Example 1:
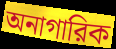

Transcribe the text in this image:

অনাগারিক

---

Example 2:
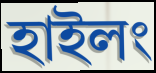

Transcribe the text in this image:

হাইলং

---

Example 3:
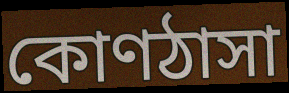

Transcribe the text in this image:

কোণঠাসা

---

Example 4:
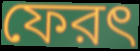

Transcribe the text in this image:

ফেরৎ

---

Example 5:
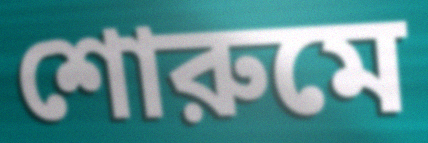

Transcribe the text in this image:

শোরুমে